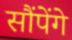
सौंपेंगे